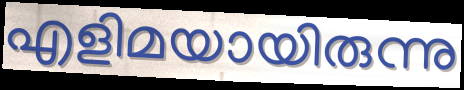
എളിമയായിരുന്നു